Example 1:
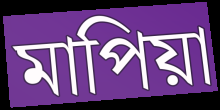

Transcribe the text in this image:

মাপিয়া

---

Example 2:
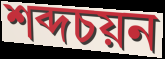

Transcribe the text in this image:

শব্দচয়ন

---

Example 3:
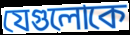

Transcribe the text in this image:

যেগুলোকে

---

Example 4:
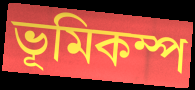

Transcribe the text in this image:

ভূমিকম্প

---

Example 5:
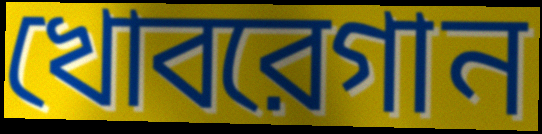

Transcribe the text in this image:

খোবরেগান